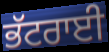
ਭੱਟਰਾਈ